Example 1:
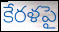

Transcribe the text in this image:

కేరళపై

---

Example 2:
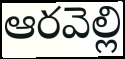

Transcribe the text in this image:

ఆరవెల్లి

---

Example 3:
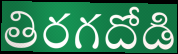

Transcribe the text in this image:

తిరగదోడి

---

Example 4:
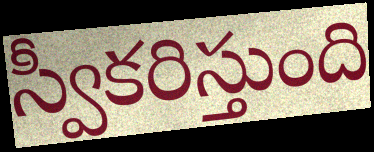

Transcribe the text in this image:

స్వీకరిస్తుంది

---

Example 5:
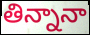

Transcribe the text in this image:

తిన్నానా